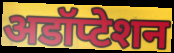
अडॉप्टेशन